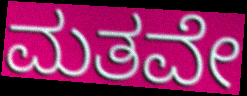
ಮತವೇ